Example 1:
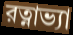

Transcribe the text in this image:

রত্নাভ্যা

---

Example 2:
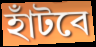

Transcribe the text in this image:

হাঁটবে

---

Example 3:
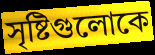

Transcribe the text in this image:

সৃষ্টিগুলোকে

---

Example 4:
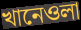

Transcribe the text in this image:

খানেওলা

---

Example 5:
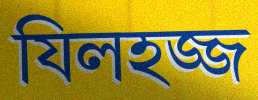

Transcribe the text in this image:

যিলহজ্জ